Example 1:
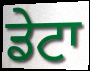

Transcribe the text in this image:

ਡੇਟਾ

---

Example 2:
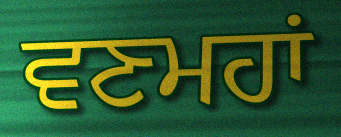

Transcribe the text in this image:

ਵਣਮਹਾਂ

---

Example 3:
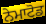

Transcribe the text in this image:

ਨੇਮਾਟੋਡ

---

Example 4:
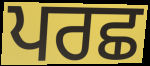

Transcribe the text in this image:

ਪਰਛ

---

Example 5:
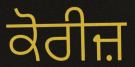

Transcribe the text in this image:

ਕੋਰੀਜ਼